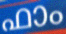
ഫാം